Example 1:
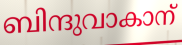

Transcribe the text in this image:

ബിന്ദുവാകാന്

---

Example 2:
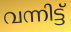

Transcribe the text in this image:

വന്നിട്ട്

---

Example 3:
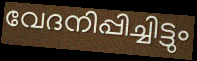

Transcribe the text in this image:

വേദനിപ്പിച്ചിട്ടും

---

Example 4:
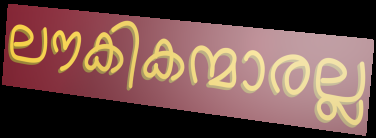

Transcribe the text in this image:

ലൗകികന്മാരല്ല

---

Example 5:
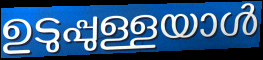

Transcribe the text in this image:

ഉടുപ്പുള്ളയാൾ